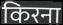
किरना